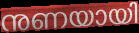
നുണയായി